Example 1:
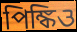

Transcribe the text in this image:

পিঙ্কিও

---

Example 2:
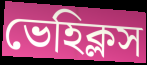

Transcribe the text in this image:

ভেহিক্লস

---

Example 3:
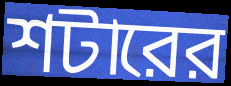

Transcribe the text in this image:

শটারের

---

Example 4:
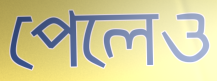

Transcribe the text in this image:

পেলেও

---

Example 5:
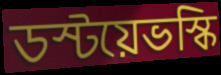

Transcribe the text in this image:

ডস্টয়েভস্কি